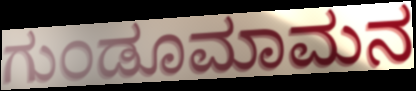
ಗುಂಡೂಮಾಮನ